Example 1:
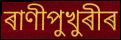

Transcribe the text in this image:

ৰাণীপুখুৰীৰ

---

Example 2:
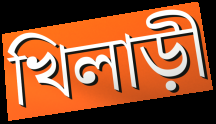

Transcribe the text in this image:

খিলাড়ী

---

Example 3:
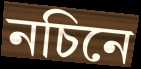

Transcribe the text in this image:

নচিনে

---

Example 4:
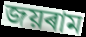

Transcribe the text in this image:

জয়ৰাম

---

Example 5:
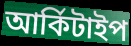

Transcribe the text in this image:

আৰ্কিটাইপ